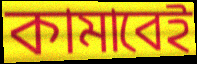
কামাবেই